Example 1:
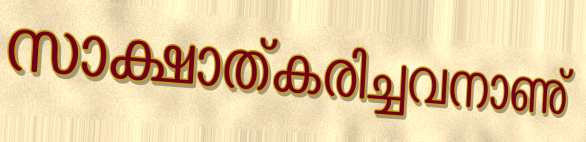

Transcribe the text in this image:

സാക്ഷാത്കരിച്ചവനാണു്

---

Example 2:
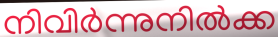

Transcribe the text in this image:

നിവിർന്നുനിൽക്ക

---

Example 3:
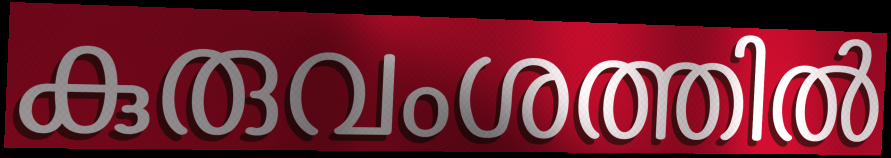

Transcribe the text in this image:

കുരുവംശത്തിൽ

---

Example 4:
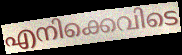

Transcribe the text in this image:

എനിക്കെവിടെ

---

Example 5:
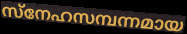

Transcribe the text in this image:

സ്നേഹസമ്പന്നമായ